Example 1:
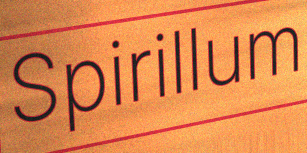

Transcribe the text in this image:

Spirillum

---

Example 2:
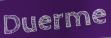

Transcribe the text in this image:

Duerme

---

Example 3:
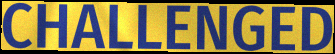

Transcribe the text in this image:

CHALLENGED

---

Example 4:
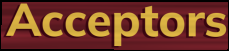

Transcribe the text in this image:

Acceptors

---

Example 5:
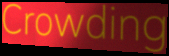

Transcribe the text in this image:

Crowding